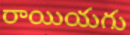
రాయియగు